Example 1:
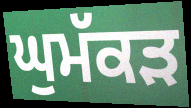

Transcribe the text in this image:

ਘੁਮੱਕਡ਼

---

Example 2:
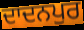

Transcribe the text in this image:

ਦਾਦਨਪੁਰ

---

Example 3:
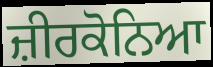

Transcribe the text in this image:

ਜ਼ੀਰਕੋਨਿਆ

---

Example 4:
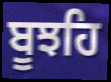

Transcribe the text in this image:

ਬੂਝਹਿ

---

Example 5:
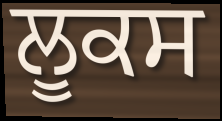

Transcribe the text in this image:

ਲੂਕਸ